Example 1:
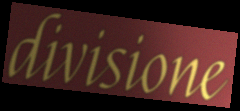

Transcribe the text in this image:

divisione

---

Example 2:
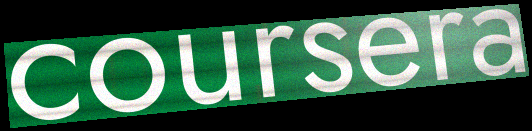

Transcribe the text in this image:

coursera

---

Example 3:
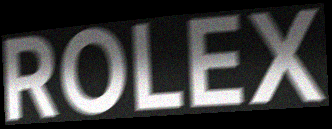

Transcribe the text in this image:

ROLEX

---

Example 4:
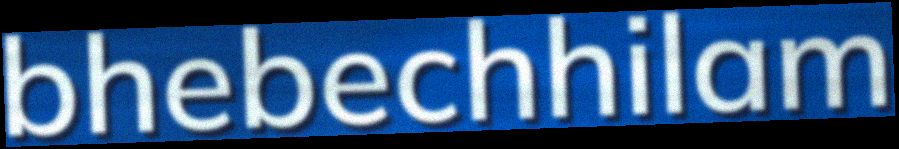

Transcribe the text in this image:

bhebechhilam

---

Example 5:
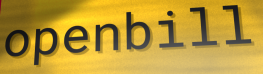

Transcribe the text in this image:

openbill